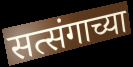
सत्संगाच्या